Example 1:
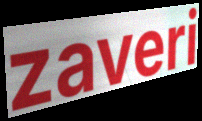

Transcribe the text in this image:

zaveri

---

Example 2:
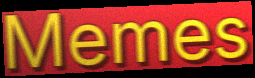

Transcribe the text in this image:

Memes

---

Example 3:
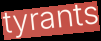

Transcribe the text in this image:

tyrants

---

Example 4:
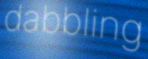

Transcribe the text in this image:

dabbling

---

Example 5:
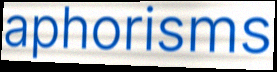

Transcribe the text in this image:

aphorisms